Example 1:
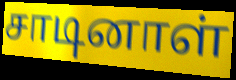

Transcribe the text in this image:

சாடினாள்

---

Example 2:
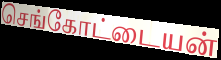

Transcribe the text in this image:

செங்கோட்டையன்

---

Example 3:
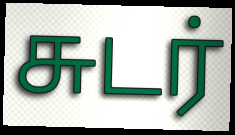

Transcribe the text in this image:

சுடர்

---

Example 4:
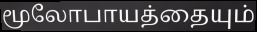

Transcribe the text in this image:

மூலோபாயத்தையும்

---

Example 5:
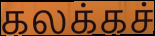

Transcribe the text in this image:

கலக்கச்